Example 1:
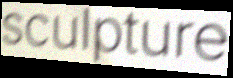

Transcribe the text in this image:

sculpture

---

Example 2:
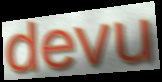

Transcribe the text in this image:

devu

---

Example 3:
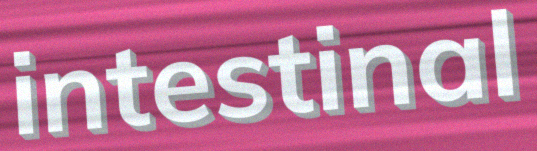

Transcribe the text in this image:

intestinal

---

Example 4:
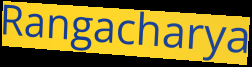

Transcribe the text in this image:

Rangacharya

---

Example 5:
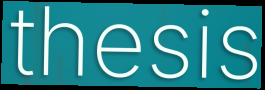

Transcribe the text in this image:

thesis